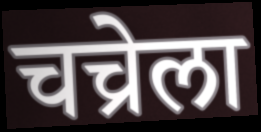
चच्रेला